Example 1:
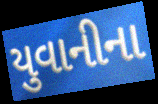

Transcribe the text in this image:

યુવાનીના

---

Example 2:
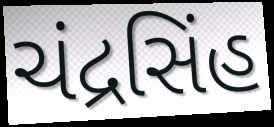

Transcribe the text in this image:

ચંદ્રસિંહ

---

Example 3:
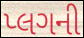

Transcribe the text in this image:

પ્લગની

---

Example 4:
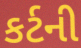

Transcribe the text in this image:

કર્ટની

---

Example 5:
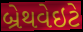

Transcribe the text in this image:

બ્રેથવેઇટે